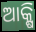
ଆକ୍ଷି